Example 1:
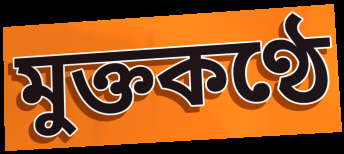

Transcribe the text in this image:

মুক্তকণ্ঠে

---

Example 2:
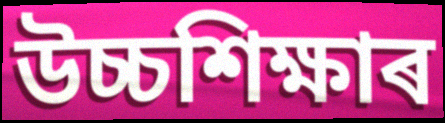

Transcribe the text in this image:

উচ্চশিক্ষাৰ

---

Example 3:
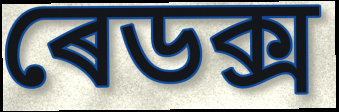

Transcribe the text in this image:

ৰেডক্স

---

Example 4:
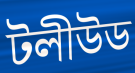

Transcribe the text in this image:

টলীউড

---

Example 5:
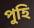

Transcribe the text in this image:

পুহি